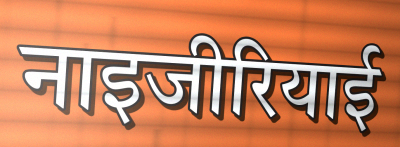
नाइजीरियाई